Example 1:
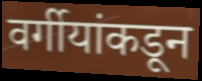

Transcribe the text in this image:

वर्गीयांकडून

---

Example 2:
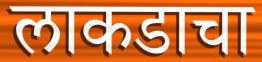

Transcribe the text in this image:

लाकडाचा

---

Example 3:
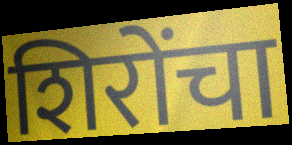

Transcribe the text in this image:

शिरोंचा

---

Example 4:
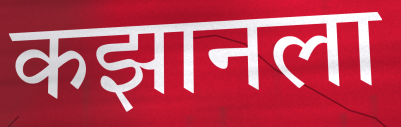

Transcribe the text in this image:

कझानला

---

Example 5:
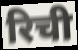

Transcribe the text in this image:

रिची